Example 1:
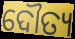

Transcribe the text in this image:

ଦୌତ୍ୟ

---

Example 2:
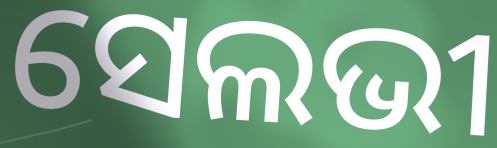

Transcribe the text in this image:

ସେଲଭୀ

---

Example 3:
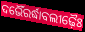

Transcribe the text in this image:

ଦର୍ଭୈରର୍ଦ୍ଧାବଲୀଢ଼ୈଃ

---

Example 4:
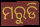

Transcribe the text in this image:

ମରୁଡି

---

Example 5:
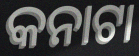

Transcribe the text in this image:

କନାଟା